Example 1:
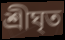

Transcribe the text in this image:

শ্রীঘৃত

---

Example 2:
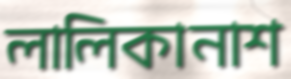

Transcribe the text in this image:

লালিকানাশ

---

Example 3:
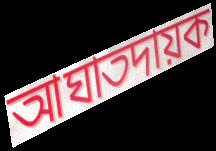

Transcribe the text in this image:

আঘাতদায়ক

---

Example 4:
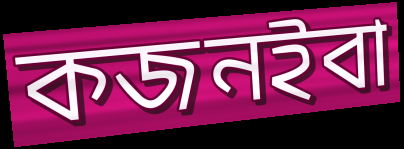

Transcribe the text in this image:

কজনইবা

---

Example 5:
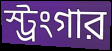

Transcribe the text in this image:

স্ট্রংগার